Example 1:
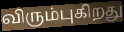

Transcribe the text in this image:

விரும்புகிறது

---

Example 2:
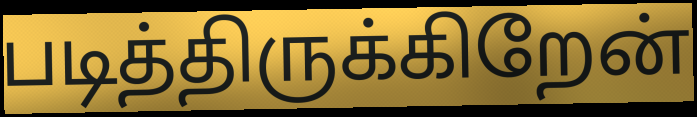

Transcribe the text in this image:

படித்திருக்கிறேன்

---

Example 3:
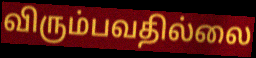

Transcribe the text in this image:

விரும்பவதில்லை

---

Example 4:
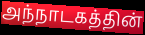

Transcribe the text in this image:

அந்நாடகத்தின்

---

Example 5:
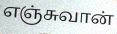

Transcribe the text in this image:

எஞ்சுவான்